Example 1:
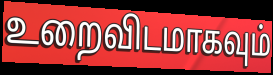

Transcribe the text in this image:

உறைவிடமாகவும்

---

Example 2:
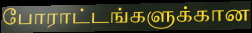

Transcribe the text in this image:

போராட்டங்களுக்கான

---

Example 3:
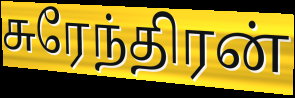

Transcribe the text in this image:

சுரேந்திரன்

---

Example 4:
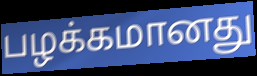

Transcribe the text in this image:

பழக்கமானது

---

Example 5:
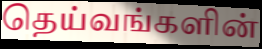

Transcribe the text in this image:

தெய்வங்களின்